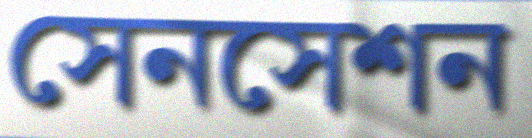
সেনসেশন